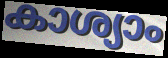
കാശ്യാം